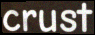
crust